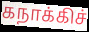
கநாக்கிச்